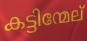
കട്ടിന്മേല്